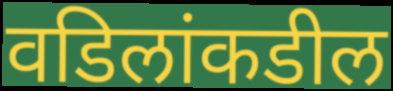
वडिलांकडील